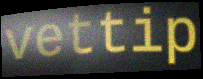
vettip